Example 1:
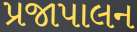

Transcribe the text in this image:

પ્રજાપાલન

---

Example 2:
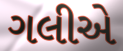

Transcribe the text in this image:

ગલીએ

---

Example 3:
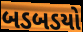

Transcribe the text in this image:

બડબડયો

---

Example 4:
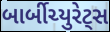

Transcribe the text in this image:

બાર્બીચ્યુરેટ્સ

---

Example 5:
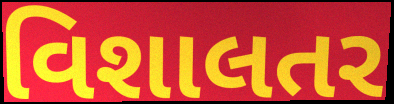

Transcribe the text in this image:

વિશાલતર